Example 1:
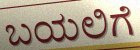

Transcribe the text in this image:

ಬಯಲಿಗೆ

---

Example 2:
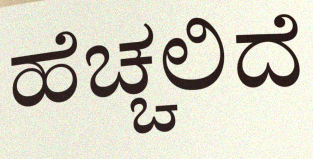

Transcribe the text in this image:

ಹೆಚ್ಚಲಿದೆ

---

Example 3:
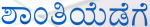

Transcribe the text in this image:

ಶಾಂತಿಯೆಡೆಗೆ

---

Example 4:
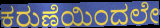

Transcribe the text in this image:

ಕರುಣೆಯಿಂದಲೇ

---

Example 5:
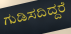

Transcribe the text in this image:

ಗುಡಿಸದಿದ್ದರೆ